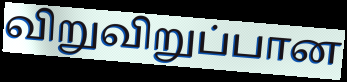
விறுவிறுப்பான